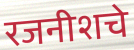
रजनीशचे